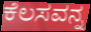
ಕೆಲಸವನ್ನ